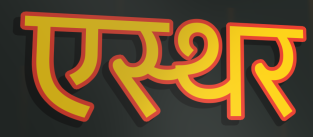
एस्थर